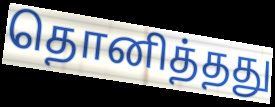
தொனித்தது